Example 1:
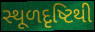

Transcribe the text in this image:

સ્થૂળદૃષ્ટિથી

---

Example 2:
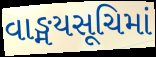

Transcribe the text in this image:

વાઙ્મયસૂચિમાં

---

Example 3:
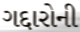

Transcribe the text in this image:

ગદ્દારોની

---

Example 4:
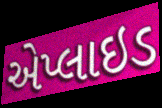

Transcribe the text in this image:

એપ્લાઇડ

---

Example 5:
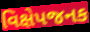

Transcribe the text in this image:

વિક્ષેપજનક